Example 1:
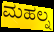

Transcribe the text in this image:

ಮಹಲ್ನ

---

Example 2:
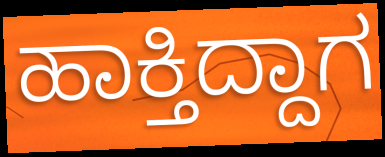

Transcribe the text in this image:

ಹಾಕ್ತಿದ್ದಾಗ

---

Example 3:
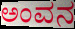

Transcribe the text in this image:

ಅಂವನ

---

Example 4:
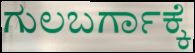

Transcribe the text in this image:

ಗುಲಬರ್ಗಾಕ್ಕೆ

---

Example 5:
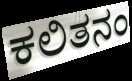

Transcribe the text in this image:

ಕಲಿತನಂ